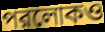
পরলোকও